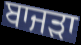
ਬਾਜਡ਼ਾ